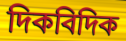
দিকবিদিক